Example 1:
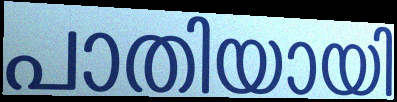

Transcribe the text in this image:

പാതിയായി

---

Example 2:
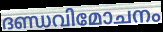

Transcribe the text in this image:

ദണ്ഡവിമോചനം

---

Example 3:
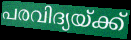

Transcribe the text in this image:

പരവിദ്യയ്ക്ക്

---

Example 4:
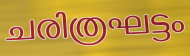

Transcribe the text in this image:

ചരിത്രഘട്ടം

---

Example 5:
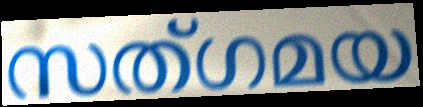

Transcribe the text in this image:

സത്ഗമയ